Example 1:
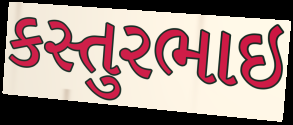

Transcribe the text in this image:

કસ્તુરભાઇ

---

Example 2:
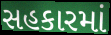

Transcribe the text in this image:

સહકારમાં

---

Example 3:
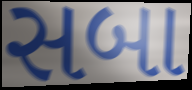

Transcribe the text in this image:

સબા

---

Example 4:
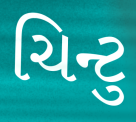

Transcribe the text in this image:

ચિન્ટુ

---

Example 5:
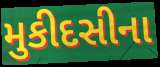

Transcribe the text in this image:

મુકીદસીના